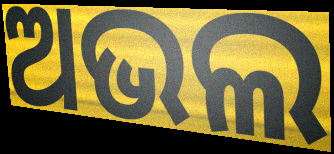
ଅଭଲ